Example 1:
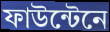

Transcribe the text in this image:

ফাউন্টেনে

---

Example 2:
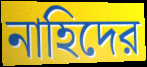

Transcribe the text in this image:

নাহিদের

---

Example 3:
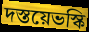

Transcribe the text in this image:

দস্তয়েভস্কি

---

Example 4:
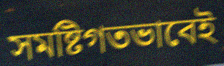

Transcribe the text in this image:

সমষ্টিগতভাবেই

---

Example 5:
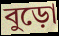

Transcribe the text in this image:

বুড়ো